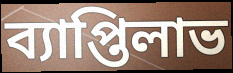
ব্যাপ্তিলাভ